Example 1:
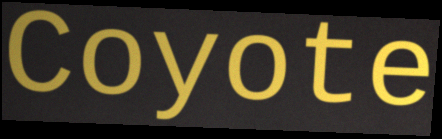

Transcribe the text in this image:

Coyote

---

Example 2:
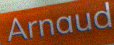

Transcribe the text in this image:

Arnaud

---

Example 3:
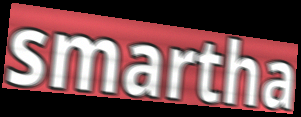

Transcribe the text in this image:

smartha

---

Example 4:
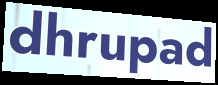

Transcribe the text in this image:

dhrupad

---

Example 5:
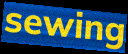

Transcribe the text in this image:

sewing